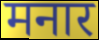
मनार